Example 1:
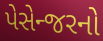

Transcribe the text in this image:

પેસેન્જરનો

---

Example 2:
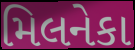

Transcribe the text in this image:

મિલનેકા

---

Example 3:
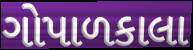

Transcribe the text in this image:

ગોપાળકાલા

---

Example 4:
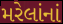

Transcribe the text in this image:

મરેલાંનાં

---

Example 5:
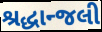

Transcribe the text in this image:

શ્રદ્ધાન્જલી